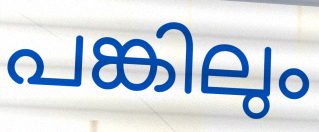
പങ്കിലും